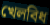
খেলবিধ